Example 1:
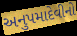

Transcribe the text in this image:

અનુપમાદેવીનો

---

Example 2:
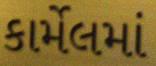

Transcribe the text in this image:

કાર્મેલમાં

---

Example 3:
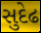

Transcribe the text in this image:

સુદેઢ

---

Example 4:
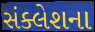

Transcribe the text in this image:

સંક્લેશના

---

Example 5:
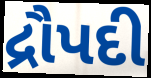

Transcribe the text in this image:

દ્રૌપદી